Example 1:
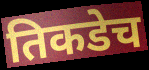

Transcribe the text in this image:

तिकडेच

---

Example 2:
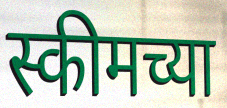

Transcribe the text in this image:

स्कीमच्या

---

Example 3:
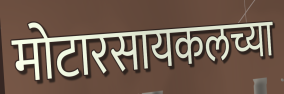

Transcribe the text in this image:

मोटारसायकलच्या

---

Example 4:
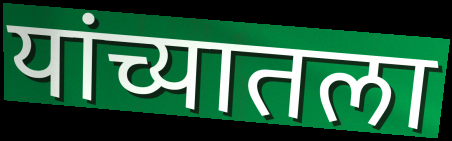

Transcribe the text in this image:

यांच्यातला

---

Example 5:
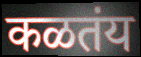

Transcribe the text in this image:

कळतंय